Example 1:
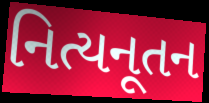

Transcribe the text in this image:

નિત્યનૂતન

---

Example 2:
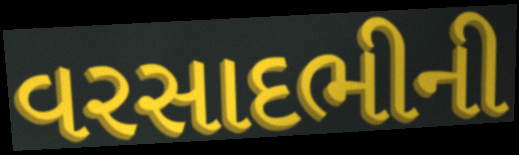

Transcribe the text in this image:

વરસાદભીની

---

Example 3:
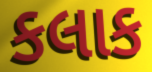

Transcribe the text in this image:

કલાક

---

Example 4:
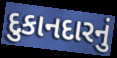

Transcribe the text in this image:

દુકાનદારનું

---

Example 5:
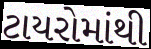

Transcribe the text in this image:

ટાયરોમાંથી